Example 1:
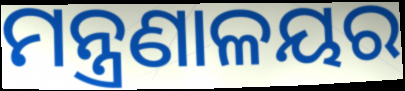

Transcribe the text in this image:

ମନ୍ତ୍ରଣାଳୟର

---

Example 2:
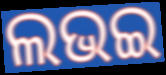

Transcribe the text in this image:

ଲଭଇ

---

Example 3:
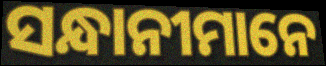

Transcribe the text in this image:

ସନ୍ଧାନୀମାନେ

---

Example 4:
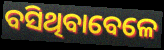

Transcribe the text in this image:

ବସିଥିବାବେଳେ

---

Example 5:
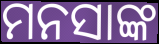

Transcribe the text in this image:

ମନସାଙ୍କ